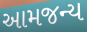
આમજન્ય